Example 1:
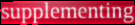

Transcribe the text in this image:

supplementing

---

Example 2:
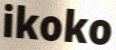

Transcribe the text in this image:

ikoko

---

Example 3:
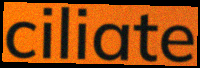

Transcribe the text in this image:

ciliate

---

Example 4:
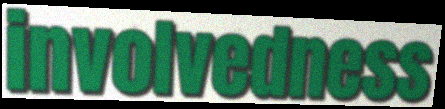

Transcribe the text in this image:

involvedness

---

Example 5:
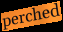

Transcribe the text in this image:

perched